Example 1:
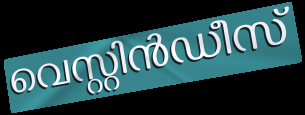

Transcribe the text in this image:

വെസ്റ്റിൻഡീസ്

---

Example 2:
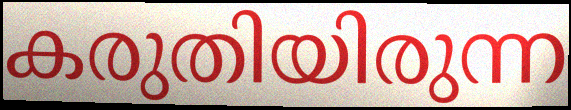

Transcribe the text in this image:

കരുതിയിരുന്ന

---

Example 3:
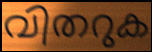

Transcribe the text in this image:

വിതറുക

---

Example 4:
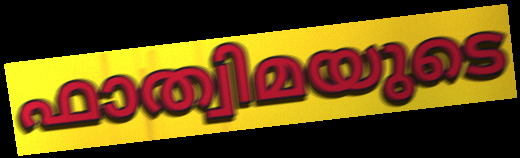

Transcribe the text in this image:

ഫാത്വിമയുടെ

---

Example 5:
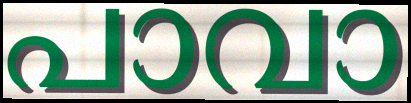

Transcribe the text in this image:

പാവാ